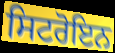
ਸਿਟਰੋਇਨ